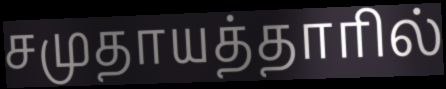
சமுதாயத்தாரில்